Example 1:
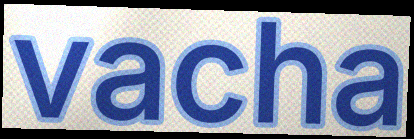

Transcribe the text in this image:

vacha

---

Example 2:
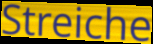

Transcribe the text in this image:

Streiche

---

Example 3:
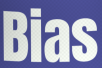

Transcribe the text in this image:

Bias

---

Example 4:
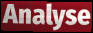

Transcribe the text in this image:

Analyse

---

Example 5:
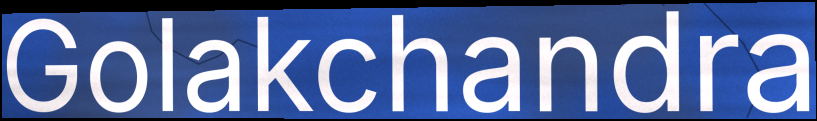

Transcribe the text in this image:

Golakchandra